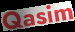
Qasim